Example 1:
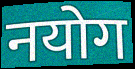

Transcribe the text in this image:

नयोग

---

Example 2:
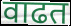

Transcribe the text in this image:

वाढत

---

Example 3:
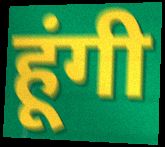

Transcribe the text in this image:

हूंगी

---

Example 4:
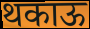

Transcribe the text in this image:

थकाऊ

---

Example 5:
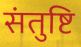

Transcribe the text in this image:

संतुष्टि